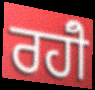
ਰਹੀਁ